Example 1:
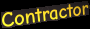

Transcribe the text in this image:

Contractor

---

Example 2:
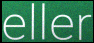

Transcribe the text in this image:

eller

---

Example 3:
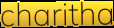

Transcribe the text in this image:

charitha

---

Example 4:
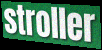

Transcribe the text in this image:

stroller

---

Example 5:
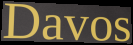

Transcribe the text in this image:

Davos